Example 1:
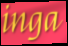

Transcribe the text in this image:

inga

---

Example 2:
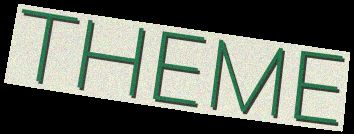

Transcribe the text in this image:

THEME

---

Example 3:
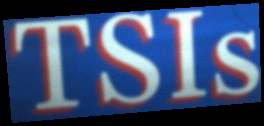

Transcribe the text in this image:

TSIs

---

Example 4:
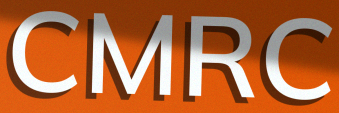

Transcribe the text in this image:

CMRC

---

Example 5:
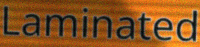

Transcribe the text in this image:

Laminated